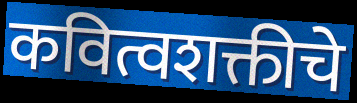
कवित्वशक्तीचे